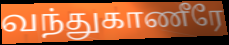
வந்துகாணீரே